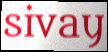
sivay